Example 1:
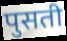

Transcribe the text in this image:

पुसती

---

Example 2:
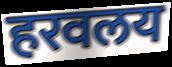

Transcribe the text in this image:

हरवलय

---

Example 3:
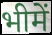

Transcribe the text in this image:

भीमें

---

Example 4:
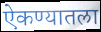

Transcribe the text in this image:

ऐकण्यातला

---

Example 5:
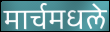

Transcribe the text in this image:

मार्चमधले